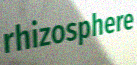
rhizosphere